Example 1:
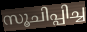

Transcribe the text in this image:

സൂചിപ്പിച്ച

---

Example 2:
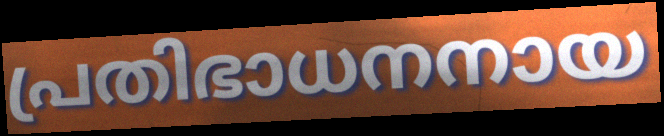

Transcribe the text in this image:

പ്രതിഭാധനനായ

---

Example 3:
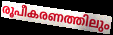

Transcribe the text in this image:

രൂപീകരണത്തിലും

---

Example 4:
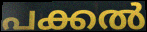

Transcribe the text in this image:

പക്കൽ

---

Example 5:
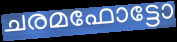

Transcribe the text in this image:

ചരമഫോട്ടോ